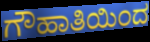
ಗೌಹಾತಿಯಿಂದ